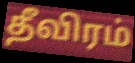
தீவிரம்